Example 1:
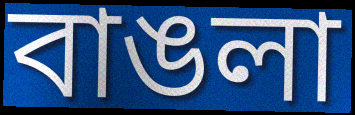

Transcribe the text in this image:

বাঙলা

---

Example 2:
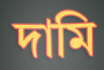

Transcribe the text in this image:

দামি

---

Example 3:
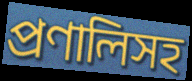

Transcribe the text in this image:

প্রণালিসহ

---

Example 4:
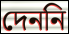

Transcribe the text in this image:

দেননি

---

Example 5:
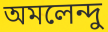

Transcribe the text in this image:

অমলেন্দু